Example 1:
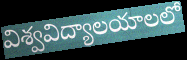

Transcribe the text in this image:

విశ్వవిద్యాలయాలలో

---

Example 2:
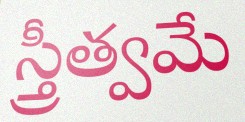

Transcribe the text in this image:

స్త్రీత్వమే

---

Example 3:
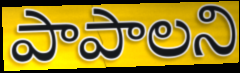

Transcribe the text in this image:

పాపాలని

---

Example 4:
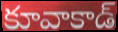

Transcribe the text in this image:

కూవాకాడ్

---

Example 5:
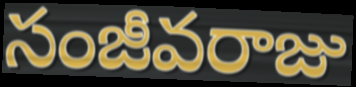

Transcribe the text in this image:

సంజీవరాజు